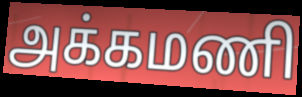
அக்கமணி